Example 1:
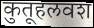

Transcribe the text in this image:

कुतूहलवश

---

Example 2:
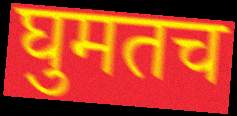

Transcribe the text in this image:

घुमतच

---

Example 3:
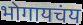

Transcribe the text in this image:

भोगायचंय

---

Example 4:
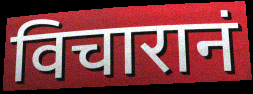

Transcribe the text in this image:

विचारानं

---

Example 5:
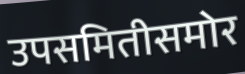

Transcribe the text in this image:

उपसमितीसमोर